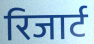
रिजार्ट